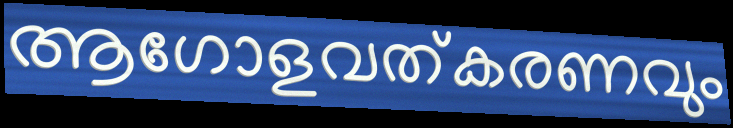
ആഗോളവത്കരണവും